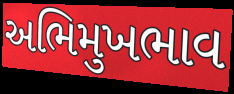
અભિમુખભાવ